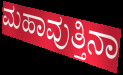
ಮಹಾವುತ್ತಿನಾ